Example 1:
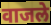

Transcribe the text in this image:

वाजले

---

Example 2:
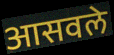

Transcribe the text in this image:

आसवले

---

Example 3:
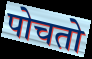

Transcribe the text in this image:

पोचतो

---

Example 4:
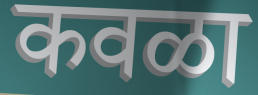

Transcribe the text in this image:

कवळा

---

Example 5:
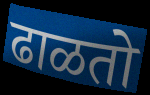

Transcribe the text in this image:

ढाळतो